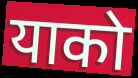
याको